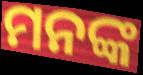
ମନଙ୍କ